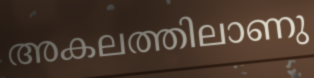
അകലത്തിലാണു